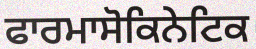
ਫਾਰਮਾਸੋਕਿਨੇਟਿਕ